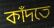
কাঁদতে